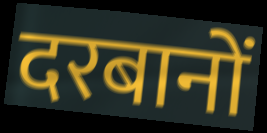
दरबानों